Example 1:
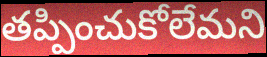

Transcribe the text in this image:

తప్పించుకోలేమని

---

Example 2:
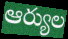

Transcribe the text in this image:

ఆర్యుల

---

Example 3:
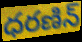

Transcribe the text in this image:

ధరణిన్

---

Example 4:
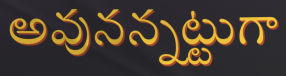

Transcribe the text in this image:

అవునన్నట్టుగా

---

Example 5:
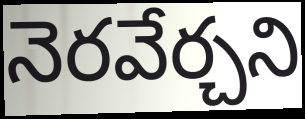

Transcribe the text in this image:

నెరవేర్చని